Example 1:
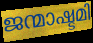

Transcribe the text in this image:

ജന്മാഷ്ടമി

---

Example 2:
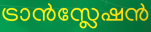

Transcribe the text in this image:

ട്രാൻസ്ലേഷൻ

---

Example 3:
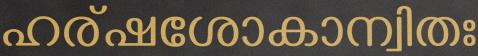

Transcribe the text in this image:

ഹര്ഷശോകാന്വിതഃ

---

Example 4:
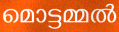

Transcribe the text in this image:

മൊട്ടമ്മൽ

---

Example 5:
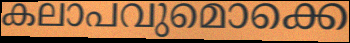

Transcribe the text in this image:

കലാപവുമൊക്കെ